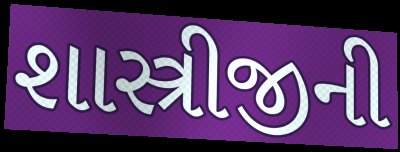
શાસ્ત્રીજીની